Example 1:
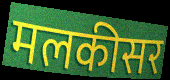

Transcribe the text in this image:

मलकीसर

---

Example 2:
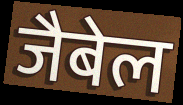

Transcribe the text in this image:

जैबेल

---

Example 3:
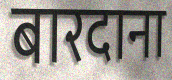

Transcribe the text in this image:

बारदाना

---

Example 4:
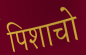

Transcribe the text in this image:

पिशाचो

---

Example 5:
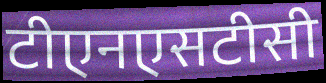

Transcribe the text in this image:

टीएनएसटीसी